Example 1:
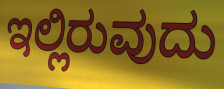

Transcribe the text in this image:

ಇಲ್ಲಿರುವುದು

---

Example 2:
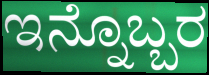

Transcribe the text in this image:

ಇನ್ನೊಬ್ಬರ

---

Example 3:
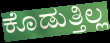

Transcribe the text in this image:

ಕೊಡುತ್ತಿಲ್ಲ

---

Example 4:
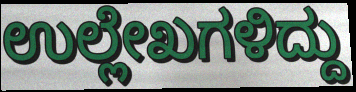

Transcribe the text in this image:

ಉಲ್ಲೇಖಗಳಿದ್ದು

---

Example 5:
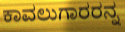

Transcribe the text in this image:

ಕಾವಲುಗಾರರನ್ನ